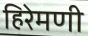
हिरेमणी